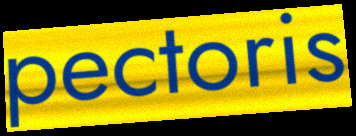
pectoris